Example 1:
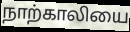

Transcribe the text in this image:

நாற்காலியை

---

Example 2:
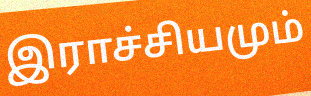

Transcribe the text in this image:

இராச்சியமும்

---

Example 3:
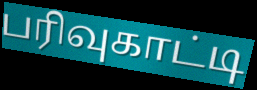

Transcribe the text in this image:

பரிவுகாட்டி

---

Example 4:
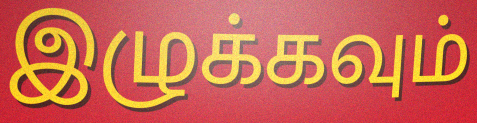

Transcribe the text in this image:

இழுக்கவும்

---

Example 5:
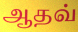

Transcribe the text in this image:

ஆதவ்